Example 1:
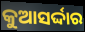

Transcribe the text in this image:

କୁଆସର୍ଦ୍ଦାର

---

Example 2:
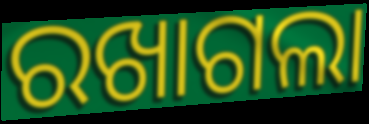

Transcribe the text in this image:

ରଖାଗଲା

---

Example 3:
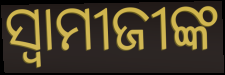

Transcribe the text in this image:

ସ୍ୱାମୀଜୀଙ୍କ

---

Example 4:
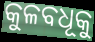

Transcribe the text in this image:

କୁଳବଧୂକୁ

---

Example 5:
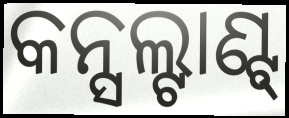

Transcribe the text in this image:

କନ୍ସଲ୍ଟାଣ୍ଟ୍